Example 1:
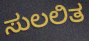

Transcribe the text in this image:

ಸುಲಲಿತ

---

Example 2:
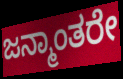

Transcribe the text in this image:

ಜನ್ಮಾಂತರೇ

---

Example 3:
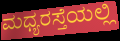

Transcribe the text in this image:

ಮಧ್ಯರಸ್ತೆಯಲ್ಲಿ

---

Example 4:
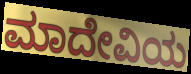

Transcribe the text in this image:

ಮಾದೇವಿಯ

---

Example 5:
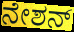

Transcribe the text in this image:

ನೇಶನ್